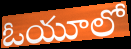
ఓయూలో